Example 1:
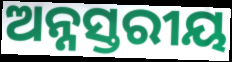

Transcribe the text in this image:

ଅନ୍ନସ୍ତରୀୟ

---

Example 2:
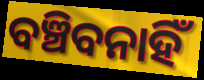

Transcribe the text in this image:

ବଞ୍ଚିବନାହିଁ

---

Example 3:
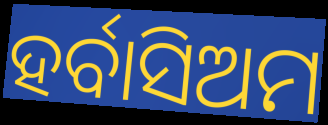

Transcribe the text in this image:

ହର୍ବାସିଅମ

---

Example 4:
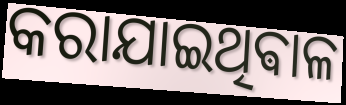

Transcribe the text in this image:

କରାଯାଇଥିଵାଳ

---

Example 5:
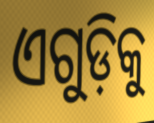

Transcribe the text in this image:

ଏଗୁଡ଼ିକୁ